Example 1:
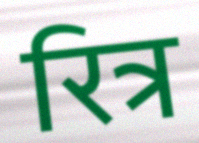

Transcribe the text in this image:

रित्र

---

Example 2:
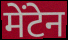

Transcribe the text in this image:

मेंटेन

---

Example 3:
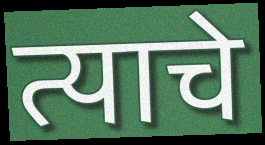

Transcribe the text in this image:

त्याचे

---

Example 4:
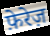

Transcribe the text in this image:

फ़ेरेज़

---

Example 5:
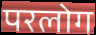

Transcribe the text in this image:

परलोग